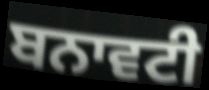
ਬਨਾਵਟੀ